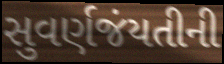
સુવર્ણજંયતીની